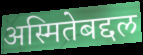
अस्मितेबद्दल